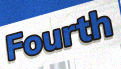
Fourth